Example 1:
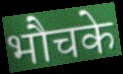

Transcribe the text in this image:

भौचके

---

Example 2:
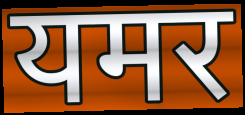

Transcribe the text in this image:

यमर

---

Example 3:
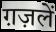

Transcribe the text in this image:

ग़ज़लें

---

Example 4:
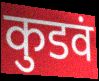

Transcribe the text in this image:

कुडवं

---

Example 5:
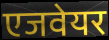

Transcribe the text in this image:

एजवेयर